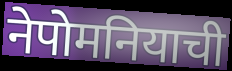
नेपोमनियाची